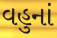
વહુનાં